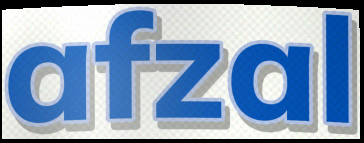
afzal